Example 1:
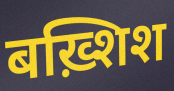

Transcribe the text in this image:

बख़्शिश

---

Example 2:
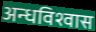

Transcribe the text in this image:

अन्धविश्वास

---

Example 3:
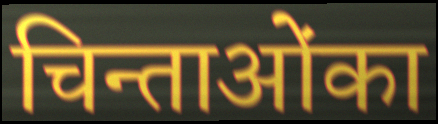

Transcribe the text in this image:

चिन्ताओंका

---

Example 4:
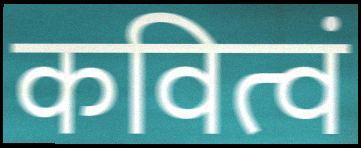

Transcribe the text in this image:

कवित्वं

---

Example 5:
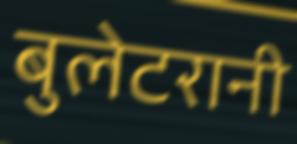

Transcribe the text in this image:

बुलेटरानी